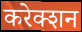
करेक्शन